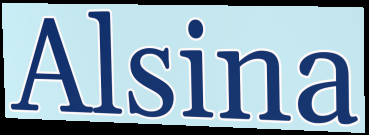
Alsina